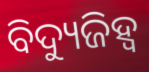
ବିଦ୍ୟୁଜିହ୍ୱ